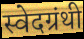
स्वेदग्रंथी